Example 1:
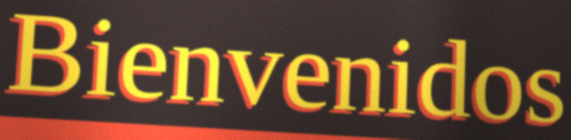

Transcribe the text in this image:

Bienvenidos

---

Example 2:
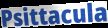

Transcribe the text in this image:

Psittacula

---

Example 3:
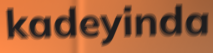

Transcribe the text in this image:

kadeyinda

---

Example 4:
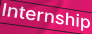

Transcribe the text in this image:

Internship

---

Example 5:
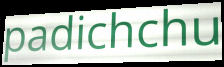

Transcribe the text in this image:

padichchu